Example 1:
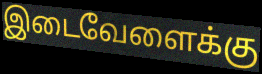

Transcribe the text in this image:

இடைவேளைக்கு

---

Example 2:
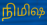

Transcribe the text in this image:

நிமிஷ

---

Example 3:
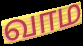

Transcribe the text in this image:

வாம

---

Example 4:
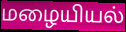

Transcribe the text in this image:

மழையியல்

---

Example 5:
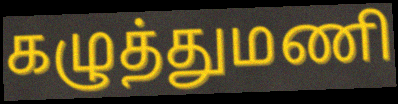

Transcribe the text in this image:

கழுத்துமணி